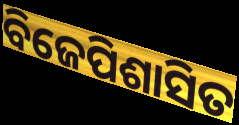
ବିଜେପିଶାସିତ